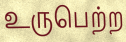
உருபெற்ற